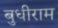
बुधीराम